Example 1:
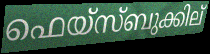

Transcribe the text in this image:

ഫെയ്സ്ബുക്കില്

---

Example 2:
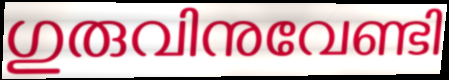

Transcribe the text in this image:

ഗുരുവിനുവേണ്ടി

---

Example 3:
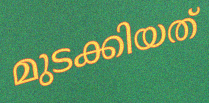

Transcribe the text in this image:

മുടക്കിയത്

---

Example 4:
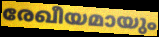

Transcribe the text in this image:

രേഖീയമായും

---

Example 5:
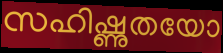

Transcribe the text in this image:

സഹിഷ്ണുതയോ